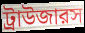
ট্রাউজারস